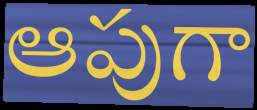
ఆపుగా